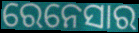
ରେନେସାର